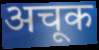
अचूक